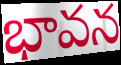
భావన